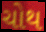
ચોથ